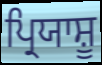
ਪ੍ਰਿਯਾਸ਼ੂ